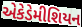
એકેડેમીશિયન